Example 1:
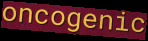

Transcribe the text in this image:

oncogenic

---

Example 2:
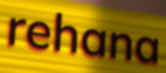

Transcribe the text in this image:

rehana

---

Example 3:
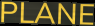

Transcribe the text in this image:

PLANE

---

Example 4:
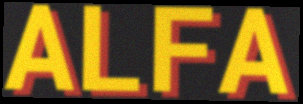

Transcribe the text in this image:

ALFA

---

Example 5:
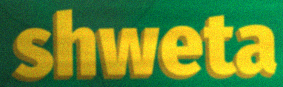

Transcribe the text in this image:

shweta